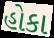
હોકા